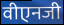
वीएनजी